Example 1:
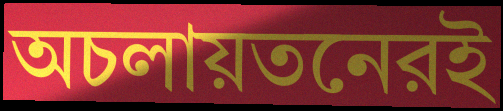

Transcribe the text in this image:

অচলায়তনেরই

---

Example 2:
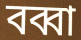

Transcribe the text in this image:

বব্বা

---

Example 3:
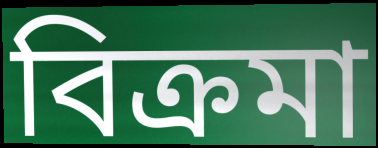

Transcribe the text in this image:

বিক্রমা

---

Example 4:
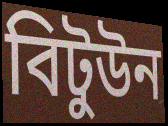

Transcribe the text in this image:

বিটুউন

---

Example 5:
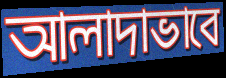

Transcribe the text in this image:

আলাদাভাবে